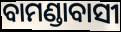
ବାମଣ୍ଡାବାସୀ